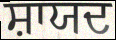
ਸ਼ਾਯਦ